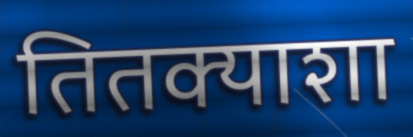
तितक्याशा